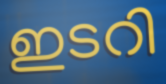
ഇടറി